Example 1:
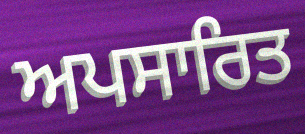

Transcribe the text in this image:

ਅਪਸਾਰਿਤ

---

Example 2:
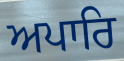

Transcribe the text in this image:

ਅਪਾਰਿ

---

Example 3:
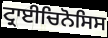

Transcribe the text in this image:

ਟ੍ਰਾਈਚਿਨੋਸਿਸ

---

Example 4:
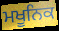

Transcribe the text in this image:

ਮਖੂਨਿਕ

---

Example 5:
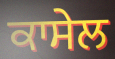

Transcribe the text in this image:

ਕਾਸੇਲ